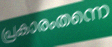
പ്രകാരംതന്നെ